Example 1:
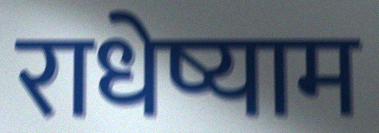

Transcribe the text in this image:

राधेष्याम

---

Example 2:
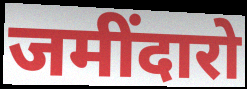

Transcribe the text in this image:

जमींदारो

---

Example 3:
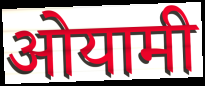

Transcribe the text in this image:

ओयामी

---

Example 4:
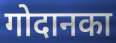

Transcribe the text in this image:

गोदानका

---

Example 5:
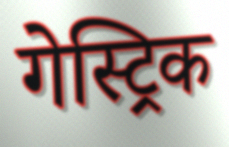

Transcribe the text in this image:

गेस्ट्रिक